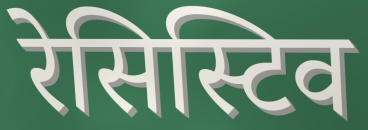
रेसिस्टिव